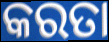
କରତା